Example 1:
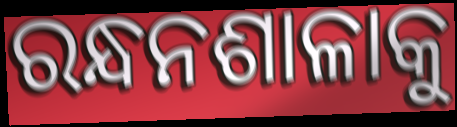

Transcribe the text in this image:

ରନ୍ଧନଶାଳାକୁ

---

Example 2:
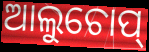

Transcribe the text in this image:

ଆଲୁଚୋପ୍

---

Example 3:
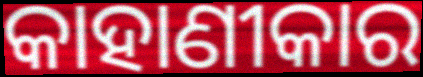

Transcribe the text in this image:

କାହାଣୀକାର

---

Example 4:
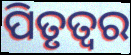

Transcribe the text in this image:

ପିତୃତ୍ୱର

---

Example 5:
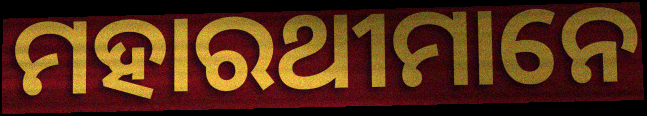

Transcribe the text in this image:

ମହାରଥୀମାନେ